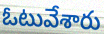
ఓటువేశారు